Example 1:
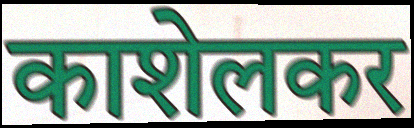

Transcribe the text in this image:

काशेलकर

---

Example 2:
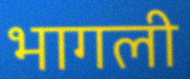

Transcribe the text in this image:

भागली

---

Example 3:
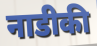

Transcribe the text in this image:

नाडीकी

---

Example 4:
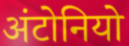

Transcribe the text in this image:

अंटोनियो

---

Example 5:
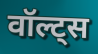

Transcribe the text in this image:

वॉल्ट्स